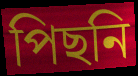
পিছনি